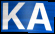
KA